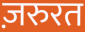
ज़रुरत